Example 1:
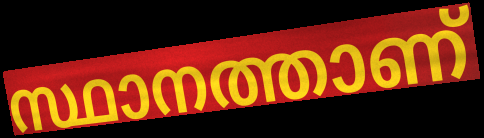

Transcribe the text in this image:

സ്ഥാനത്താണ്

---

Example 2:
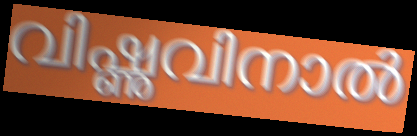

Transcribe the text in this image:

വിഷ്ണുവിനാൽ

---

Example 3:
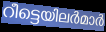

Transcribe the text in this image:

റീട്ടെയിലർമാർ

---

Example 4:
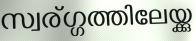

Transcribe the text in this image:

സ്വര്ഗ്ഗത്തിലേയ്ക്കു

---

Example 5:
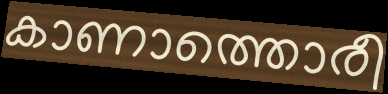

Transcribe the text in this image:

കാണാത്തൊരീ